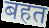
बहत